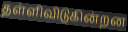
தள்ளிவிடுகின்றன